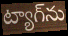
ట్యాగ్‌ను